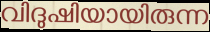
വിദുഷിയായിരുന്ന